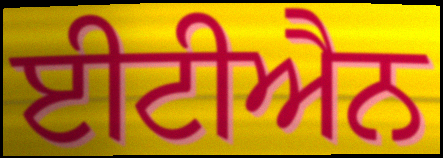
ਈਟੀਐਨ